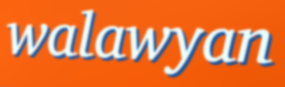
walawyan